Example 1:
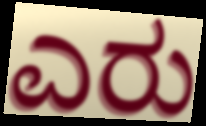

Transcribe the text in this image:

ಎರು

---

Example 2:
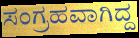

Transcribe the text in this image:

ಸಂಗ್ರಹವಾಗಿದ್ದ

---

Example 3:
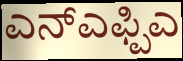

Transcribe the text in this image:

ಎನ್ಎಫ್ಪಿಎ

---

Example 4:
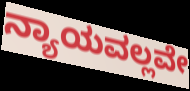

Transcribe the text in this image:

ನ್ಯಾಯವಲ್ಲವೇ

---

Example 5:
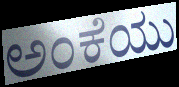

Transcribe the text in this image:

ಅಂಕೆಯು